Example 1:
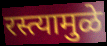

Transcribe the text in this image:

रस्त्यामुळे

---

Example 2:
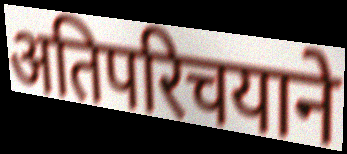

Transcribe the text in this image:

अतिपरिचयाने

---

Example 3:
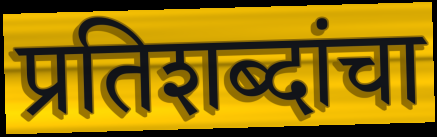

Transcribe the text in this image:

प्रतिशब्दांचा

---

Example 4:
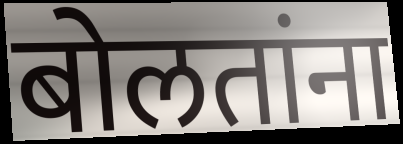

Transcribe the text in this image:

बोलतांना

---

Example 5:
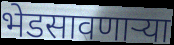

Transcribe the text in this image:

भेडसावणार्‍या